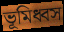
ভূমিধ্বস